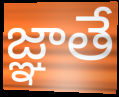
జ్ఞాతే